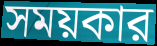
সময়কার